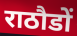
राठौडों